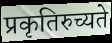
प्रकृतिरुच्यते